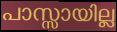
പാസ്സായില്ല